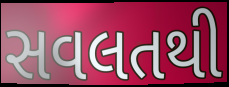
સવલતથી